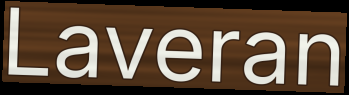
Laveran